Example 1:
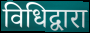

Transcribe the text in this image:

विधिद्वारा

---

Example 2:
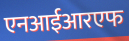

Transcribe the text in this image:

एनआईआरएफ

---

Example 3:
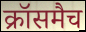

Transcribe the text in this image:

क्रॉसमैच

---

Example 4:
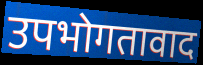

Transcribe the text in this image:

उपभोगतावाद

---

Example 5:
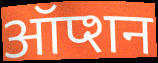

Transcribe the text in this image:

ऑप्शन